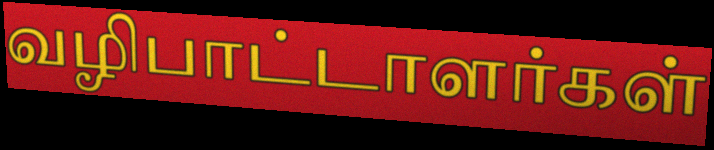
வழிபாட்டாளர்கள்